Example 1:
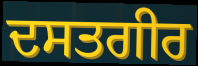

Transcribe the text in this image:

ਦਸਤਗੀਰ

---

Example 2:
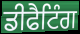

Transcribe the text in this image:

ਡੀਫੈਟਿੰਗ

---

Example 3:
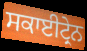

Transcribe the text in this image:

ਸਕਾਈਟ੍ਰੇਨ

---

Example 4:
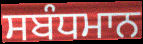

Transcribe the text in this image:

ਸਬੰਧਮਾਨ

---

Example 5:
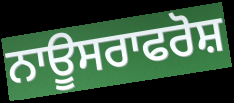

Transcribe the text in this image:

ਨਾਊਸਰਾਫਰੋਸ਼